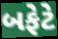
બફેટે